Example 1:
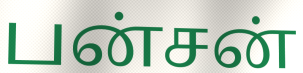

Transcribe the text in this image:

பன்சன்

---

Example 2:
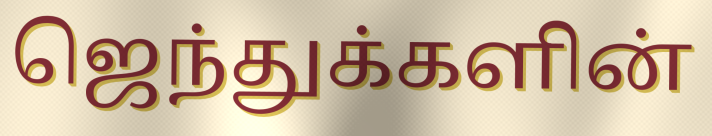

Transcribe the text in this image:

ஜெந்துக்களின்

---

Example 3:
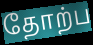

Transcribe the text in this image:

தோற்ப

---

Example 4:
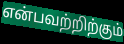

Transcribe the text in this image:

என்பவற்றிற்கும்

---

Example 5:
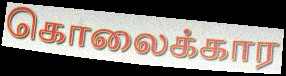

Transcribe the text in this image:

கொலைக்கார